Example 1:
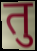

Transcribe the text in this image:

तु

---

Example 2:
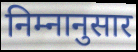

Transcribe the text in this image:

निम्नानुसार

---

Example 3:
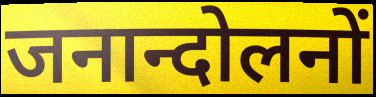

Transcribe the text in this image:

जनान्दोलनों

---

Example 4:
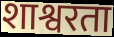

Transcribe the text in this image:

शाश्वरता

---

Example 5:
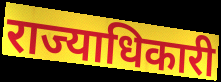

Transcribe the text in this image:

राज्याधिकारी